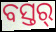
ବସ୍ତର୍